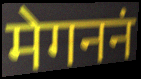
मेगननं